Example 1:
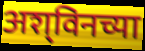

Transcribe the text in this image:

अश्विनच्या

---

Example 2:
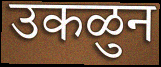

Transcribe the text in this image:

उकळुन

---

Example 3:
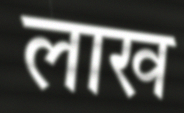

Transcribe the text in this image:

लाख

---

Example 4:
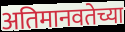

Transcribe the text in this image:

अतिमानवतेच्या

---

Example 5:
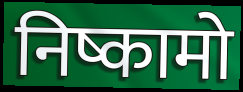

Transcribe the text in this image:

निष्कामो